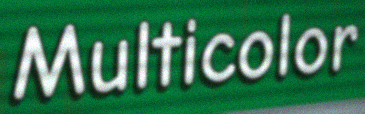
Multicolor